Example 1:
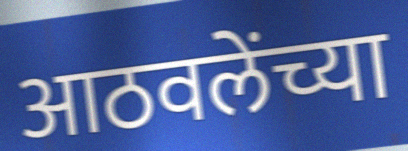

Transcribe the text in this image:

आठवलेंच्या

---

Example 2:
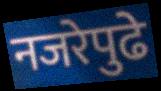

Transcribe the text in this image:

नजरेपुढे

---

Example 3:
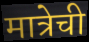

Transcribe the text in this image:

मात्रेची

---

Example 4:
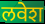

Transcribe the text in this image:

लवेश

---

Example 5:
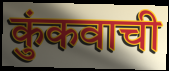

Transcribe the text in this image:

कुंकवाची